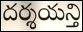
దర్శయన్తి